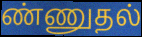
ண்ணுதல்